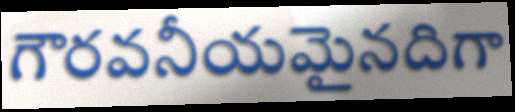
గౌరవనీయమైనదిగా